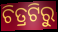
ଚିତ୍ରଟିରୁ